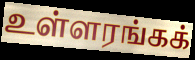
உள்ளரங்கக்